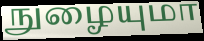
நுழையுமா